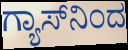
ಗ್ಯಾಸ್‌ನಿಂದ